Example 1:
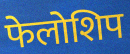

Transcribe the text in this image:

फेलोशिप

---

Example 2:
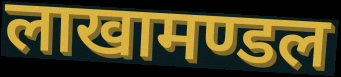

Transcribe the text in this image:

लाखामण्डल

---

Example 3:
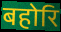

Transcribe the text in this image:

बहोरि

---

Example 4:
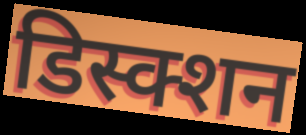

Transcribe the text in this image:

डिस्क्शन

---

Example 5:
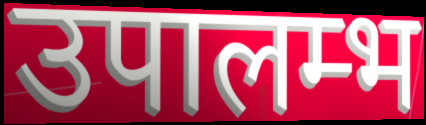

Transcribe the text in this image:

उपालम्भ